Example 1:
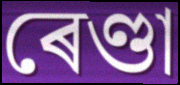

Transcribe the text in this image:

ৰেণ্ডা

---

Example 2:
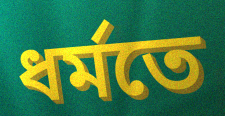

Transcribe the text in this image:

ধৰ্মতে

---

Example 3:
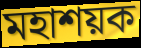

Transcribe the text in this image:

মহাশয়ক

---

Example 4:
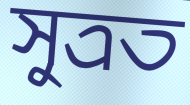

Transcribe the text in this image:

সুত্ৰত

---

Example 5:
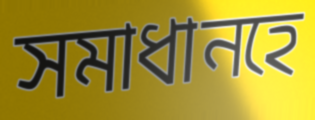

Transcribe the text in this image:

সমাধানহে